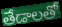
తేడాలతో